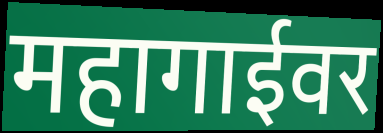
महागाईवर